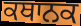
ਕਥਾਨਕ